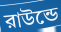
রাউন্ডে